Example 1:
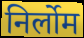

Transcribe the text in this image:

निर्लोम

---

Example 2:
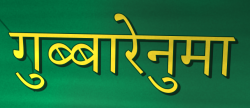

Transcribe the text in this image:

गुब्बारेनुमा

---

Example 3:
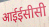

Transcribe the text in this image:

आईईसीसी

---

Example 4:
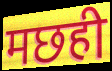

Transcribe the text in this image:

मछही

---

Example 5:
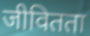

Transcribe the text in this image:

जीवितता